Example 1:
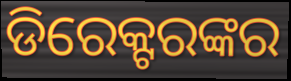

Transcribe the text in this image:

ଡିରେକ୍ଟରଙ୍କର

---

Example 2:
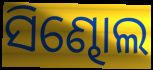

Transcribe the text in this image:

ସିଣ୍ଢୋଲ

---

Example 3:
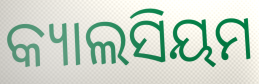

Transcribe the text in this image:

କ୍ୟାଲସିୟମ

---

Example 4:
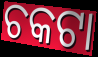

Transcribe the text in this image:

ଚକଟା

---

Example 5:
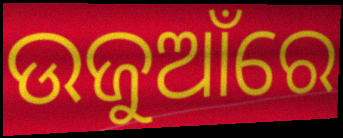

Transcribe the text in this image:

ଉଜୁଆଁରେ